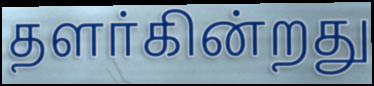
தளர்கின்றது